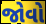
જોવો